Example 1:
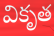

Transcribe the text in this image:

వికృత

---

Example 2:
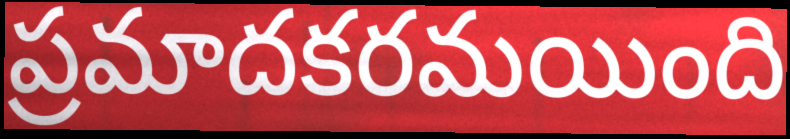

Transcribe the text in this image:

ప్రమాదకరమయింది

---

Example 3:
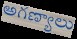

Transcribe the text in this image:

అగణ్యాలు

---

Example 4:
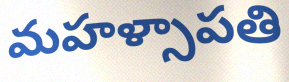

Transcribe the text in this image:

మహళ్సాపతి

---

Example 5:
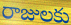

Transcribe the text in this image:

రాజులకు